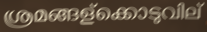
ശ്രമങ്ങള്ക്കൊടുവില്